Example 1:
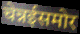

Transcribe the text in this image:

चेन्नईसमोर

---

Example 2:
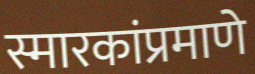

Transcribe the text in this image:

स्मारकांप्रमाणे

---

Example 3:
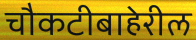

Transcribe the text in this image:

चौकटीबाहेरील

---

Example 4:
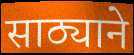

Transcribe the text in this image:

साठ्याने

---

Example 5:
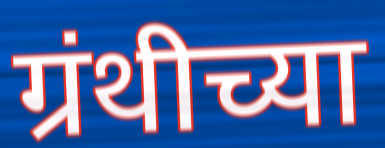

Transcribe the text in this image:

ग्रंथीच्या